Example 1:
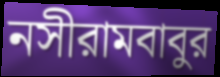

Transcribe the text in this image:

নসীরামবাবুর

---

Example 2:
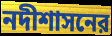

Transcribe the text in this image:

নদীশাসনের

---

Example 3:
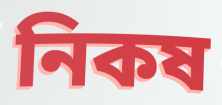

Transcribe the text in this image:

নিকষ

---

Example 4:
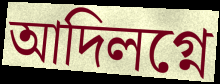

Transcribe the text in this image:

আদিলগ্নে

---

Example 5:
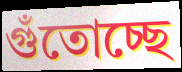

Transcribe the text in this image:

গুঁতোচ্ছে